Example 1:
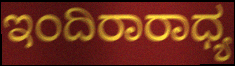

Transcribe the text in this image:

ಇಂದಿರಾರಾಧ್ಯ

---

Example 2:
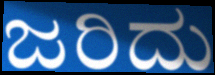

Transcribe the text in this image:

ಜರಿದು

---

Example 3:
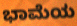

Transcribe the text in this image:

ಭಾಮೆಯ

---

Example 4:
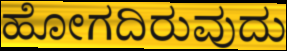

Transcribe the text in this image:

ಹೋಗದಿರುವುದು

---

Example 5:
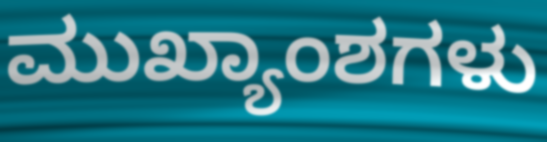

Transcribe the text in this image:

ಮುಖ್ಯಾಂಶಗಳು